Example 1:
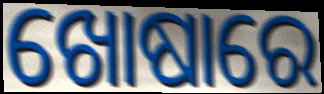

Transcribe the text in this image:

ଖୋଷାରେ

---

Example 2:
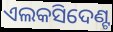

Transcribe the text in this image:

ଏଲକସିଦେଣ୍ଟ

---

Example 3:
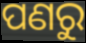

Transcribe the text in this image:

ପଣରୁ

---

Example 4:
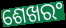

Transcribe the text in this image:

ଶେଖରଂ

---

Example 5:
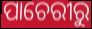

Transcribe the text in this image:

ପାଚେରୀରୁ